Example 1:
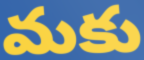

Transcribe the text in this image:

మకు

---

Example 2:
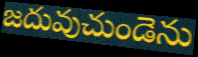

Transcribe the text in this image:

జదువుచుండెను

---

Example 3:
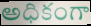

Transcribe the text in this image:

అధికంగా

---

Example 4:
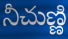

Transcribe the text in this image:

నీచుణ్ణి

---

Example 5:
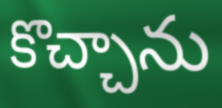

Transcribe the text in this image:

కొచ్చాను